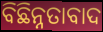
ବିଛିନ୍ନତାବାଦ